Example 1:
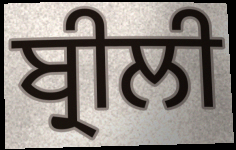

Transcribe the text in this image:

ਬ੍ਰੀਲੀ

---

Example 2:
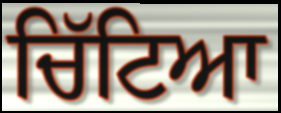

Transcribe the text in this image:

ਚਿੱਟਿਆ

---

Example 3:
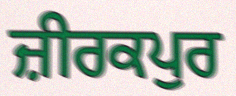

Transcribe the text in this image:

ਜ਼ੀਰਕਪੁਰ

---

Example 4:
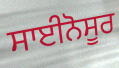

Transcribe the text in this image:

ਸਾਈਨੋਸੂਰ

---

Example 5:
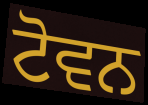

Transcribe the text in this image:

ਟੋਵਨ